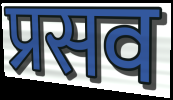
प्रसव